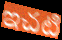
ఇచటి